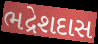
ભદ્રેશદાસ